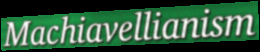
Machiavellianism